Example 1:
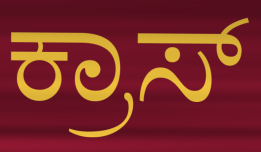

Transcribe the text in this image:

ಕ್ರಾಸ್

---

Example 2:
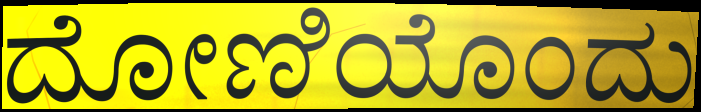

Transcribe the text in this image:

ದೋಣಿಯೊಂದು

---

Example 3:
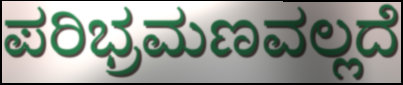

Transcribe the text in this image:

ಪರಿಭ್ರಮಣವಲ್ಲದೆ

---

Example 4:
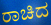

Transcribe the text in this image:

ರಾಚಿದ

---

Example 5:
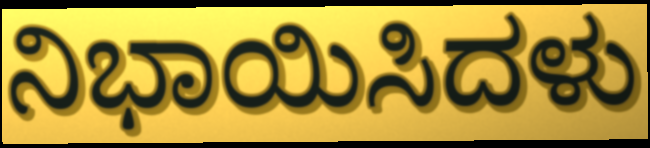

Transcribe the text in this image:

ನಿಭಾಯಿಸಿದಳು